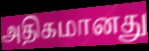
அதிகமானது